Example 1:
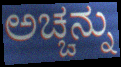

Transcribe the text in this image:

ಅಚ್ಚನ್ನು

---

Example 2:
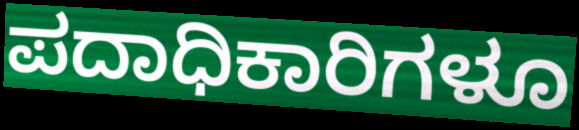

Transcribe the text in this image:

ಪದಾಧಿಕಾರಿಗಳೂ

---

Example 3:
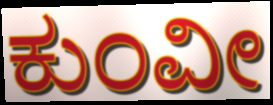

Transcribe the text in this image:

ಕುಂವೀ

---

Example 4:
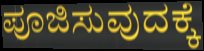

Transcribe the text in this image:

ಪೂಜಿಸುವುದಕ್ಕೆ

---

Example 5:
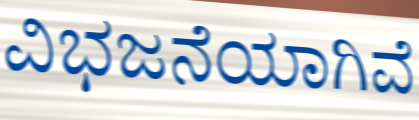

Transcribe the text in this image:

ವಿಭಜನೆಯಾಗಿವೆ